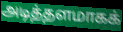
அடித்தளமாகக்